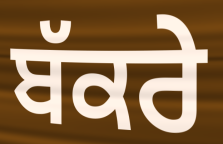
ਬੱਕਰੇ